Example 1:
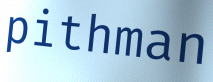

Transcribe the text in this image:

pithman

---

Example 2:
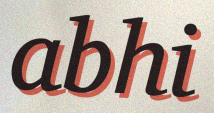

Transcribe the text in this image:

abhi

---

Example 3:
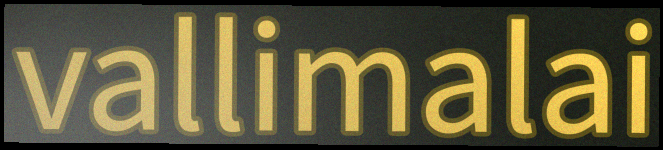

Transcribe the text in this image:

vallimalai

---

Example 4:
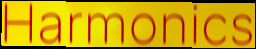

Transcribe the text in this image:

Harmonics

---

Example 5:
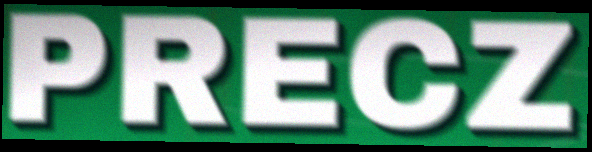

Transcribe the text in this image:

PRECZ